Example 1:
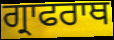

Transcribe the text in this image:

ਗ੍ਰਾਫਰਾਥ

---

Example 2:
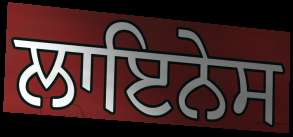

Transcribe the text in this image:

ਲਾਇਨੇਸ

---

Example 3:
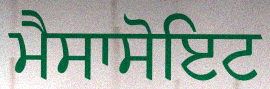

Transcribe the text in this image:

ਮੈਸਾਸੋਇਟ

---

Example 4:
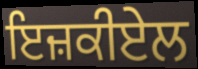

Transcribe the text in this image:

ਇਜ਼ਕੀਏਲ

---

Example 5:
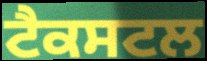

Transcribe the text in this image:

ਟੈਕਸਟਲ